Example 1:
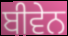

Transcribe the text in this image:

ਬੀਵੇਨ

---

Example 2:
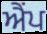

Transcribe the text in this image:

ਐਂਪ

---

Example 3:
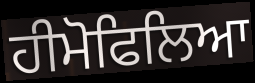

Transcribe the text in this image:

ਹੀਮੋਫਿਲਿਆ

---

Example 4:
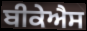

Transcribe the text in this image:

ਬੀਕੇਐਸ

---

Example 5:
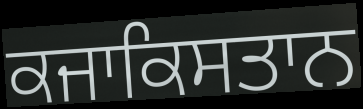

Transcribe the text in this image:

ਕਜਾਕਿਸਤਾਨ